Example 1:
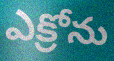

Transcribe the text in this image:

ఎక్రోను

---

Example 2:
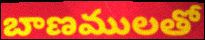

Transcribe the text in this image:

బాణములతో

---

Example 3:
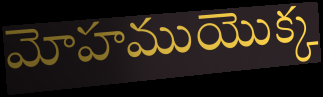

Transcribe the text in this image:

మోహముయొక్క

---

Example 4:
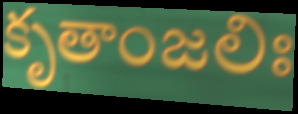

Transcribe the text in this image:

కృతాంజలిః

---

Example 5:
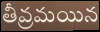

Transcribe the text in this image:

తీవ్రమయిన